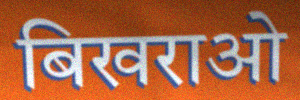
बिखराओ